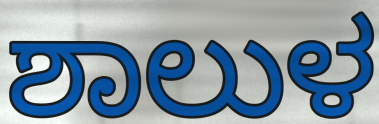
ಶಾಲುಳ